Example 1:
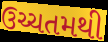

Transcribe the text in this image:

ઉચ્ચતમથી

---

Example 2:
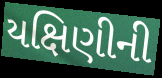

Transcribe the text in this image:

યક્ષિણીની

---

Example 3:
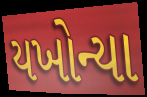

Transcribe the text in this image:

યખોન્યા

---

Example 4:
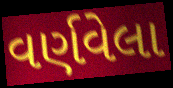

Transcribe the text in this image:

વર્ણવેલા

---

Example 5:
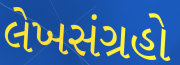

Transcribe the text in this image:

લેખસંગ્રહો